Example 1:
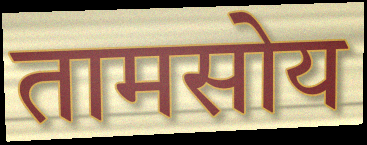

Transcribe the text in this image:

तामसोय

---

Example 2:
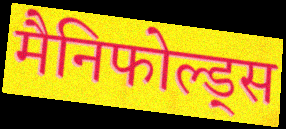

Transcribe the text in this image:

मैनिफोल्ड्स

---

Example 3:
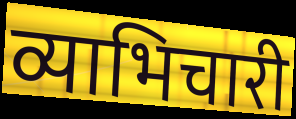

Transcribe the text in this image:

व्याभिचारी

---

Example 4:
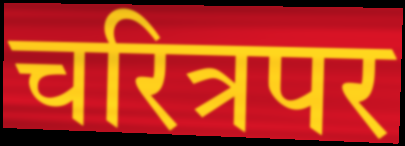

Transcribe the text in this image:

चरित्रपर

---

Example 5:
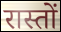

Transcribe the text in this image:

रास्तों